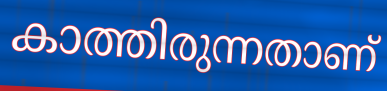
കാത്തിരുന്നതാണ്